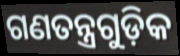
ଗଣତନ୍ତ୍ରଗୁଡ଼ିକ